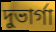
দুভার্গা